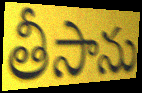
తీసాను